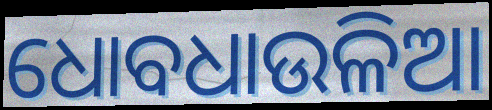
ଧୋବଧାଉଳିଆ